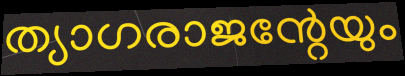
ത്യാഗരാജന്റേയും